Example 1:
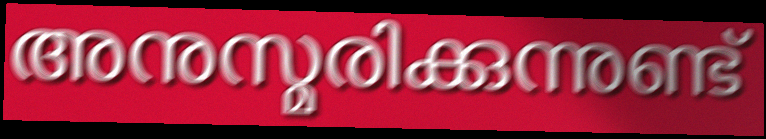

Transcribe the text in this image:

അനുസ്മരിക്കുന്നുണ്ട്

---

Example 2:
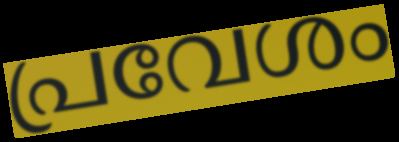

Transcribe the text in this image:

പ്രവേശം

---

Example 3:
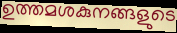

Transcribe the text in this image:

ഉത്തമശകുനങ്ങളുടെ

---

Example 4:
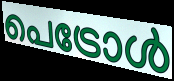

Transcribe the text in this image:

പെട്രോൾ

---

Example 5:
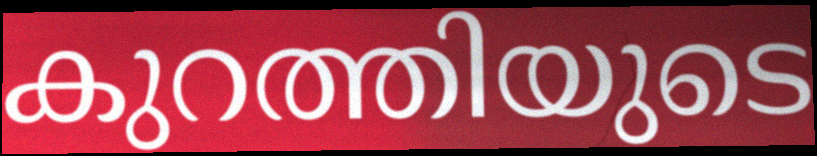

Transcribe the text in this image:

കുറത്തിയുടെ